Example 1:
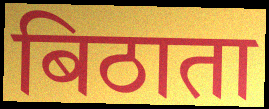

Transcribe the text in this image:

बिठाता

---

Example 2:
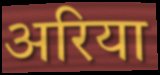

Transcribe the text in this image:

अरिया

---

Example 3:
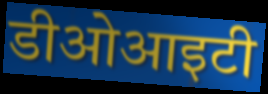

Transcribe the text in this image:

डीओआइटी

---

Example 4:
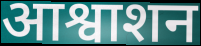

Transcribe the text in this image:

आश्वाशन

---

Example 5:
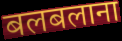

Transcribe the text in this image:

बलबलाना